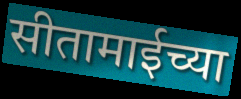
सीतामाईच्या